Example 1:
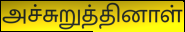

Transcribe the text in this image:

அச்சுறுத்தினாள்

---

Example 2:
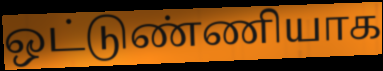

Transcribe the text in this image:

ஒட்டுண்ணியாக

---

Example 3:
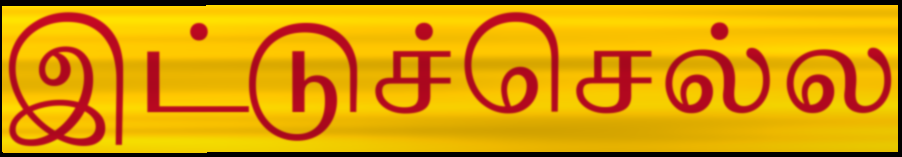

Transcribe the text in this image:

இட்டுச்செல்ல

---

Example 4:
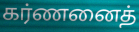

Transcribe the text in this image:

கர்ணனைத்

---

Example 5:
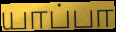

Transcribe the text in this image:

யாப்பா